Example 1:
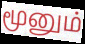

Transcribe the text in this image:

மூனும்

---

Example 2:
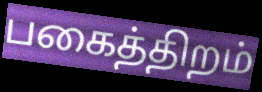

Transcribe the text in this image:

பகைத்திறம்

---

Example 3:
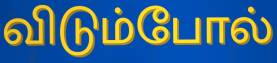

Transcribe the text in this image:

விடும்போல்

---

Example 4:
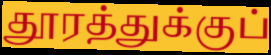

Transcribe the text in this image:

தூரத்துக்குப்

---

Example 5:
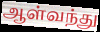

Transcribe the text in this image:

ஆள்வந்து